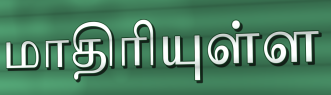
மாதிரியுள்ள